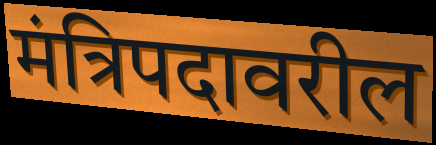
मंत्रिपदावरील